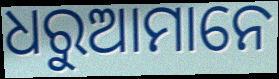
ଧରୁଆମାନେ